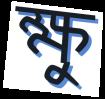
ক্ষু